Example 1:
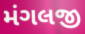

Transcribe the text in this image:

મંગલજી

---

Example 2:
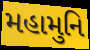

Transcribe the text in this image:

મહામુનિ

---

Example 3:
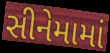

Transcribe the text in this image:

સીનેમામાં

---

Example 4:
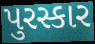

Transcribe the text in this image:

પુરસ્કાર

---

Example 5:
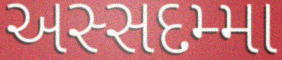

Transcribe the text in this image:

અસ્સદમ્મા